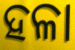
ହଳା